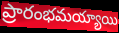
ప్రారంభమయ్యాయి